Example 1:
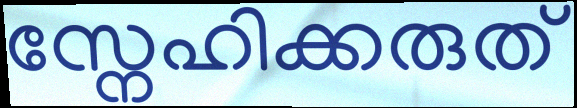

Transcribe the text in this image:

സ്നേഹിക്കരുത്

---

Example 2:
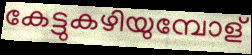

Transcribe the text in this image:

കേട്ടുകഴിയുമ്പോള്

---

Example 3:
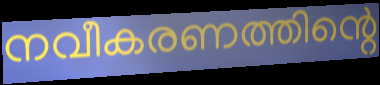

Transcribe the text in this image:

നവീകരണത്തിന്റെ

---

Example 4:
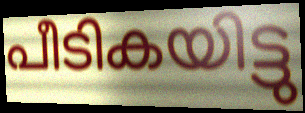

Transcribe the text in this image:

പീടികയിട്ടു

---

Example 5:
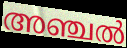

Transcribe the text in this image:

അഞ്ചൽ